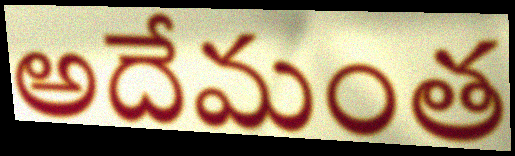
అదేమంత